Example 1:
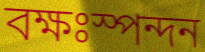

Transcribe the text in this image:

বক্ষঃস্পন্দন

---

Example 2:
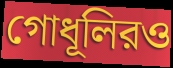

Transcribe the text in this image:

গোধূলিরও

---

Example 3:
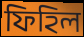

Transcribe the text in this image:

ফিহিল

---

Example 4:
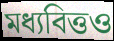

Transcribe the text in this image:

মধ্যবিত্তও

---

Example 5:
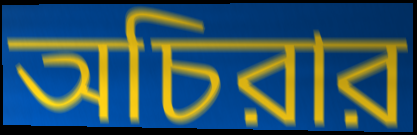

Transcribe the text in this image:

অচিরার